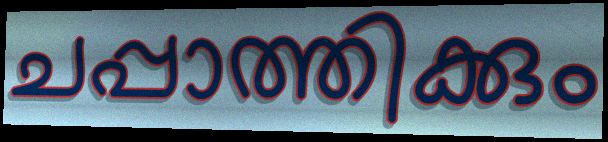
ചപ്പാത്തിക്കും